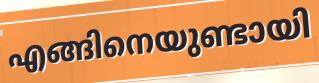
എങ്ങിനെയുണ്ടായി